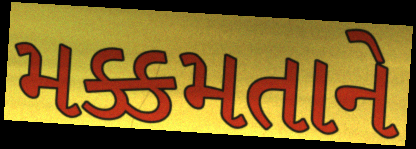
મક્કમતાને